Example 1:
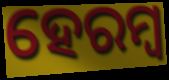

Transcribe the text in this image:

ହେରମ୍ୱ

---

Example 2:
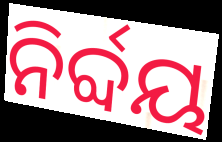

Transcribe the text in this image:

ନିର୍ବ୍ଦୟ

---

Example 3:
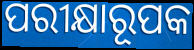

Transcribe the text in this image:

ପରୀକ୍ଷାରୂପକ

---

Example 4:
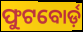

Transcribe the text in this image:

ଫୁଟବୋର୍ଡ଼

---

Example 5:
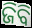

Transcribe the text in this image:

ଜିବି